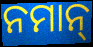
ନମାନ୍